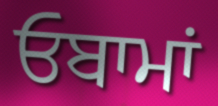
ਓਬਾਮਾਂ